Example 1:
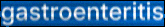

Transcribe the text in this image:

gastroenteritis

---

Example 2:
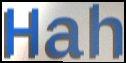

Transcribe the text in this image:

Hah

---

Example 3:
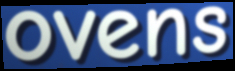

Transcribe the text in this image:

ovens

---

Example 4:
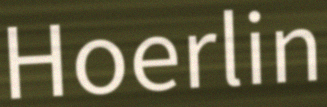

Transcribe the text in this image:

Hoerlin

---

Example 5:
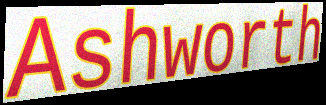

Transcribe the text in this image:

Ashworth